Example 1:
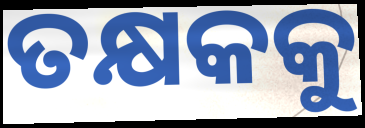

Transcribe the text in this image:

ତକ୍ଷକକୁ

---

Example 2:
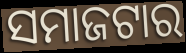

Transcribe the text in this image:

ସମାଜଟାର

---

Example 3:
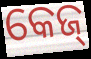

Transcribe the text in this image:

କେଜ୍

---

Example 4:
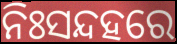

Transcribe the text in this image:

ନିଃସନ୍ଦହରେ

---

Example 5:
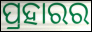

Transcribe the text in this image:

ପ୍ରହାରର